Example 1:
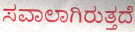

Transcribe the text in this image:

ಸವಾಲಾಗಿರುತ್ತದೆ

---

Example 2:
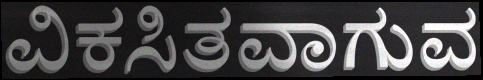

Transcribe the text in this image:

ವಿಕಸಿತವಾಗುವ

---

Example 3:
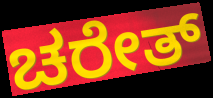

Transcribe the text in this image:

ಚರೇತ್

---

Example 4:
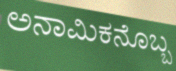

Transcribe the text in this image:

ಅನಾಮಿಕನೊಬ್ಬ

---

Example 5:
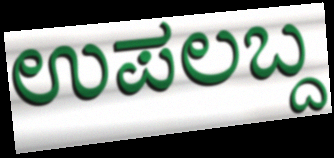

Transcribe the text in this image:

ಉಪಲಬ್ದ